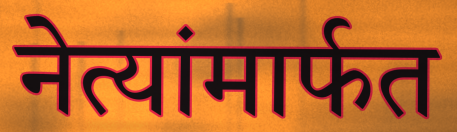
नेत्यांमार्फत